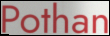
Pothan